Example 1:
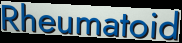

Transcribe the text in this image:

Rheumatoid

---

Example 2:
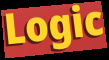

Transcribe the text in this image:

Logic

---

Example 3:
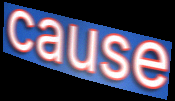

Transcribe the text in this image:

cause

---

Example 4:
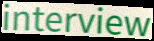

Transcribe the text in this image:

interview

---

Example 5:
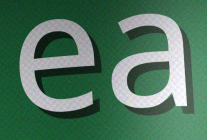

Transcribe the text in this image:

ea